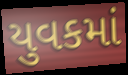
યુવકમાં